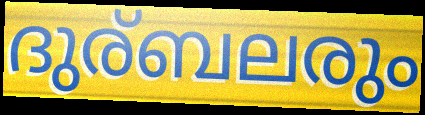
ദുര്ബലരും